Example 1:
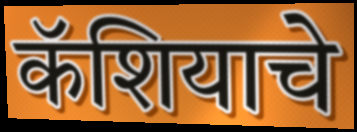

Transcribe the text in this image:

कॅशियाचे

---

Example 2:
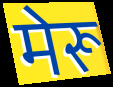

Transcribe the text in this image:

मेरू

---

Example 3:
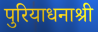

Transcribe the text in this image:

पुरियाधनाश्री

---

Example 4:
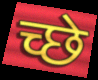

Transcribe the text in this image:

च्छे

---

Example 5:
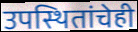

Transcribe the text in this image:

उपस्थितांचेही